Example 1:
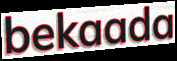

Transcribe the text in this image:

bekaada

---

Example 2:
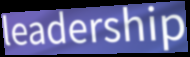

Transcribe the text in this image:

leadership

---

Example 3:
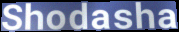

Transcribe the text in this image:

Shodasha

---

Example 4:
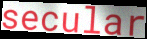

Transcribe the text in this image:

secular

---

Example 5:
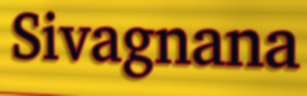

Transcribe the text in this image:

Sivagnana